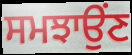
ਸਮਝਾਉਂਣ